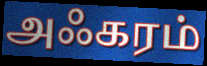
அஃகரம்